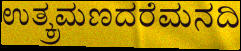
ಉತ್ಕ್ರಮಣದರೆಮನದಿ